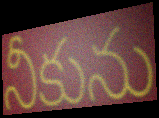
నీకును